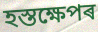
হস্তক্ষেপৰ